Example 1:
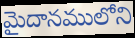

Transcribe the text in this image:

మైదానములోని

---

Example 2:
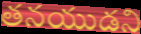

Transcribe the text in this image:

తనయుడని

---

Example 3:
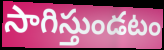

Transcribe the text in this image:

సాగిస్తుండటం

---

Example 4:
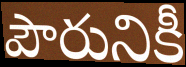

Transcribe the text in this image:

పౌరునికీ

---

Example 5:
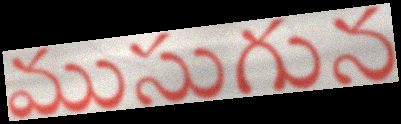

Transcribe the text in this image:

ముసుగున